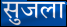
सुजला